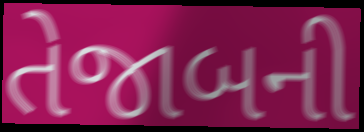
તેજાબની